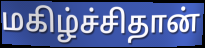
மகிழ்ச்சிதான்